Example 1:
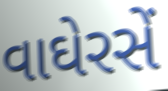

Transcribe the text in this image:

વાઘેરસેં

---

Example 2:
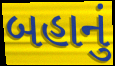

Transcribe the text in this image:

બહાનું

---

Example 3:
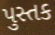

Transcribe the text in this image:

પુસ્તક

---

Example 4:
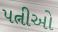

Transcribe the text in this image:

પત્નીઓ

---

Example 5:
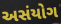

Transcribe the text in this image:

અસંયોગ